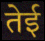
तेई